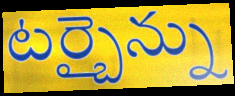
టర్బైన్ను